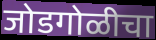
जोडगोळीचा